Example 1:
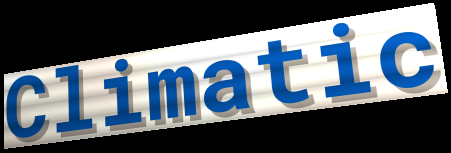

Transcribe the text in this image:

Climatic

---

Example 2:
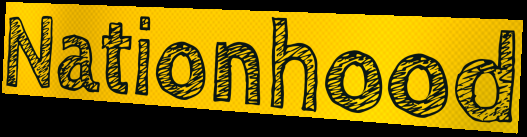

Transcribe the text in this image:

Nationhood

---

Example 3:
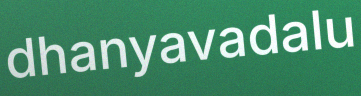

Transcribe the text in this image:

dhanyavadalu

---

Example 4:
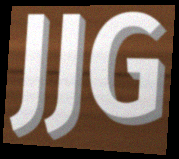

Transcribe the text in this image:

JJG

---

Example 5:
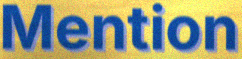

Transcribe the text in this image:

Mention